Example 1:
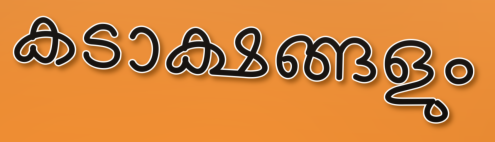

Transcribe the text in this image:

കടാക്ഷങ്ങളും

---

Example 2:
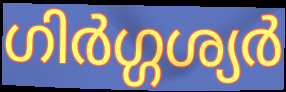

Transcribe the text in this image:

ഗിർഗ്ഗശ്യർ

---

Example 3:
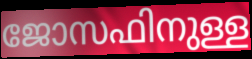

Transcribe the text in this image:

ജോസഫിനുള്ള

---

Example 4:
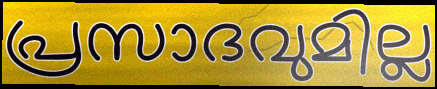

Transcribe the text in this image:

പ്രസാദവുമില്ല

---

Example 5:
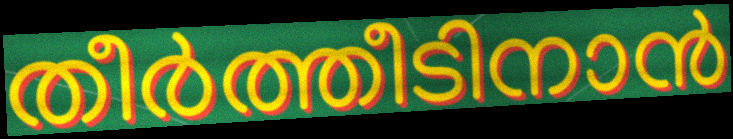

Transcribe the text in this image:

തീർത്തീടിനാൻ